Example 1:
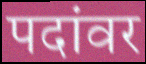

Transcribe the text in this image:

पदांवर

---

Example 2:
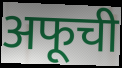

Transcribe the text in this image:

अफूची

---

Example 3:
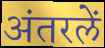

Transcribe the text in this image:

अंतरलें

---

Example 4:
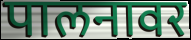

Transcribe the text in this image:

पालनावर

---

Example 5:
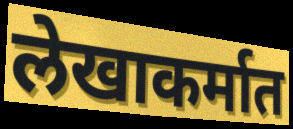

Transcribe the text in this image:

लेखाकर्मात